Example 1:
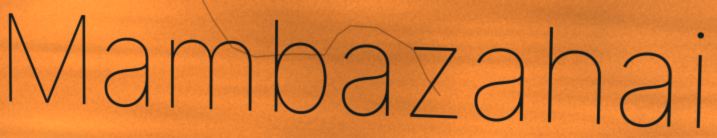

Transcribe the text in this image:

Mambazahai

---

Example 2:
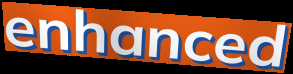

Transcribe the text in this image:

enhanced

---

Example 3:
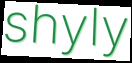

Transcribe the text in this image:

shyly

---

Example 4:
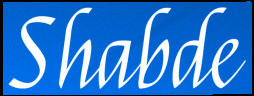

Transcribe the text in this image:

Shabde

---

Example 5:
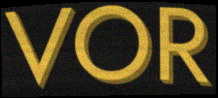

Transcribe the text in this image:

VOR